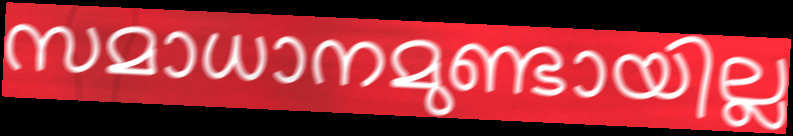
സമാധാനമുണ്ടായില്ല